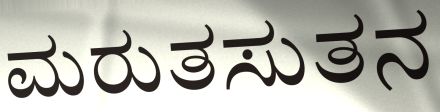
ಮರುತಸುತನ